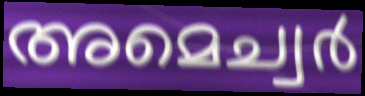
അമെച്വർ